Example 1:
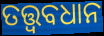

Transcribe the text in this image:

ତତ୍ତ୍ୱବଧାନ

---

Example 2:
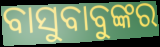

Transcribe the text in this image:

ବାସୁବାବୁଙ୍କର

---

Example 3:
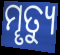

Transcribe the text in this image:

ମୄତ୍ୟୁ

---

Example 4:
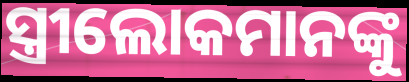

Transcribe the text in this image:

ସ୍ତ୍ରୀଲୋକମାନଙ୍କୁ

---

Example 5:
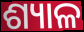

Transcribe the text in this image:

ଶ୍ୟାଳ